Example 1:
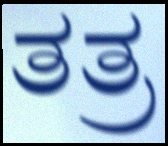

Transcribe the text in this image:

ತತ್ರ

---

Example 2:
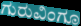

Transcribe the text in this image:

ಗುರುವಿಂಗೂ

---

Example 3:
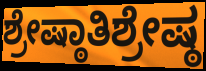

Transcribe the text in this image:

ಶ್ರೇಷ್ಠಾತಿಶ್ರೇಷ್ಠ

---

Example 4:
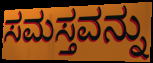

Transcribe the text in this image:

ಸಮಸ್ತವನ್ನು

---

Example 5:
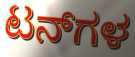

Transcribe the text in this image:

ಟನ್‌ಗಳ